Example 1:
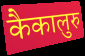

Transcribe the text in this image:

कैकालुरु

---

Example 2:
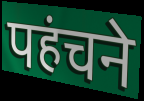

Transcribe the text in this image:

पहंचने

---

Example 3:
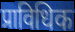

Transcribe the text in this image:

प्राविधिक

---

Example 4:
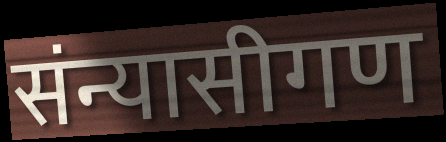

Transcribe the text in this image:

संन्यासीगण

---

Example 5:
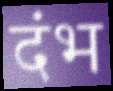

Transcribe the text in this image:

दंभ